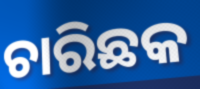
ଚାରିଛକ